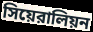
সিয়েরালিয়ন